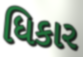
ધિકાર